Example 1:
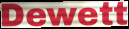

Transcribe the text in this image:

Dewett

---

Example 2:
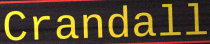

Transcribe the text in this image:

Crandall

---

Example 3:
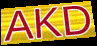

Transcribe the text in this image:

AKD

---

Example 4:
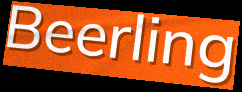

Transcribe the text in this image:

Beerling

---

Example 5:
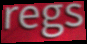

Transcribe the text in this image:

regs